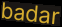
badar